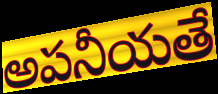
అపనీయతే